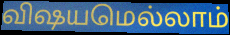
விஷயமெல்லாம்